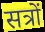
सत्रों